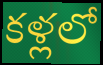
కళ్లలో